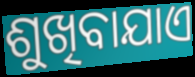
ଶୁଖିବାଯାଏ